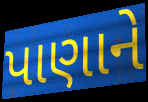
પાણાને